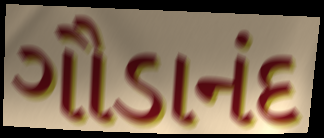
ગૌડાનંદ